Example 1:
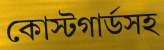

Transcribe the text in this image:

কোস্টগার্ডসহ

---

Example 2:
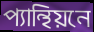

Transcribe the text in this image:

প্যান্থিয়নে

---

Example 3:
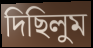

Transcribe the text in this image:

দিছিলুম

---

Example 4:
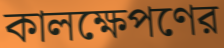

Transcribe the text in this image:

কালক্ষেপণের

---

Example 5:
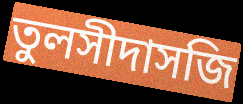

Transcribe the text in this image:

তুলসীদাসজি